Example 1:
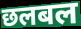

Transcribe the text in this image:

छलबल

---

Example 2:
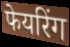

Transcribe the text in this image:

फेयरिंग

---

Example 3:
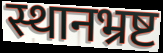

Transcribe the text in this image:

स्थानभ्रष्ट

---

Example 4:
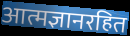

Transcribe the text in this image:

आत्मज्ञानरहित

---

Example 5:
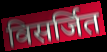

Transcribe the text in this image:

विसर्जित